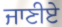
ਜਾਣੀਏ